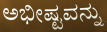
ಅಭೀಷ್ಟವನ್ನು